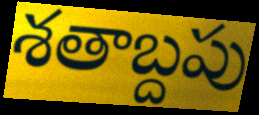
శతాబ్దపు